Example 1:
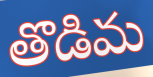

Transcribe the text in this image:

తొడిమ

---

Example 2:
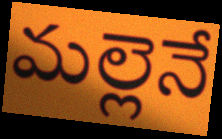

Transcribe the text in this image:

మల్లెనే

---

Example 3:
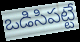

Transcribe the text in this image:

ఒడిసిపట్టే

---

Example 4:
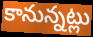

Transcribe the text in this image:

కానున్నట్లు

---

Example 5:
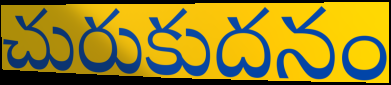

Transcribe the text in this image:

చురుకుదనం